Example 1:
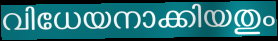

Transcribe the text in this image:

വിധേയനാക്കിയതും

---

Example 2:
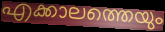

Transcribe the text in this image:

എക്കാലത്തെയും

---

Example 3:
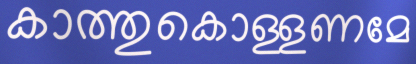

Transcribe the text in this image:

കാത്തുകൊള്ളണമേ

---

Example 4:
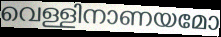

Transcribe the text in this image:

വെള്ളിനാണയമോ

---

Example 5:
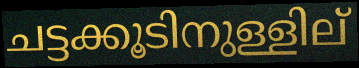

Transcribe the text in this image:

ചട്ടക്കൂടിനുള്ളില്